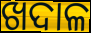
ଖଦାଳ